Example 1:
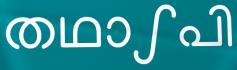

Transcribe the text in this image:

തഥാഽപി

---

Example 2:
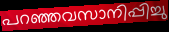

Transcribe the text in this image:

പറഞ്ഞവസാനിപ്പിച്ചു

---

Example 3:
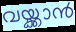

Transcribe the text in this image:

വയ്ക്കാൻ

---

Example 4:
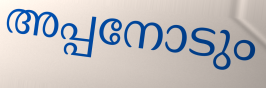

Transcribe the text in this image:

അപ്പനോടും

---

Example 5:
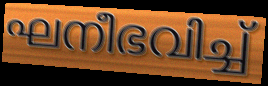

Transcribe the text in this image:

ഘനീഭവിച്ച്